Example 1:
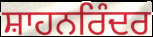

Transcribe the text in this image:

ਸ਼ਾਹਨਰਿੰਦਰ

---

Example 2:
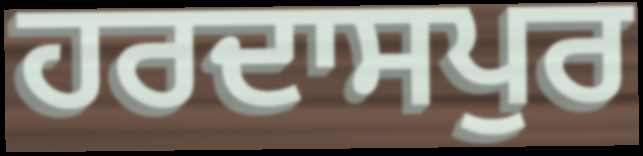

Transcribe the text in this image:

ਹਰਦਾਸਪੁਰ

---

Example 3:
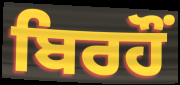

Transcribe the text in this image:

ਬਿਰਹੌਂ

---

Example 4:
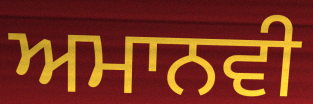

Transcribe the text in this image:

ਅਮਾਨਵੀ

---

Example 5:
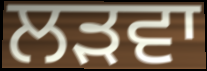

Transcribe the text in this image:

ਲੜਵਾ